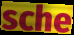
sche